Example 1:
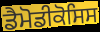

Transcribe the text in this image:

ਡੈਮੋਡੀਕੋਸਿਸ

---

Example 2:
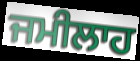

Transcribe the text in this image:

ਜਮੀਲਾਹ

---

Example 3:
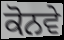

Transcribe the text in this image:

ਕੋਨਵੇ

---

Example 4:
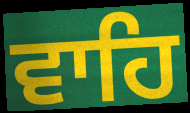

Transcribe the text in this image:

ਵਾਹਿ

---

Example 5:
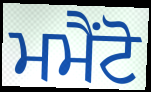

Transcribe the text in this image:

ਮਮੈਂਟੋ